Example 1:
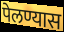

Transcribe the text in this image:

पेलण्यास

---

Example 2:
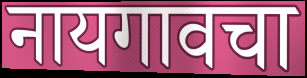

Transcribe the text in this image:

नायगावचा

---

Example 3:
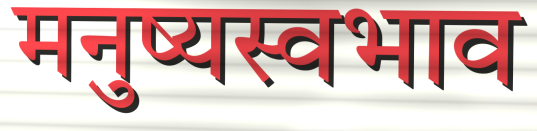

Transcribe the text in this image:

मनुष्यस्वभाव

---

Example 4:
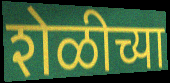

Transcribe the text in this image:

शेळीच्या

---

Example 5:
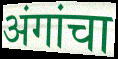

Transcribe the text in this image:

अंगांचा